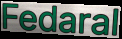
Fedaral